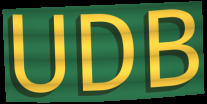
UDB